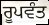
ਰੂਪਵੰਤ